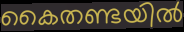
കൈതണ്ടയിൽ